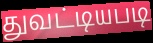
துவட்டியபடி